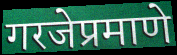
गरजेप्रमाणे